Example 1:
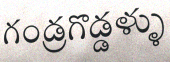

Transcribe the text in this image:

గండ్రగొడ్డళ్ళు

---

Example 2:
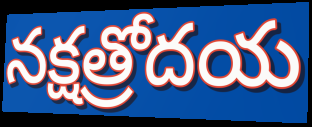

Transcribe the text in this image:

నక్షత్రోదయ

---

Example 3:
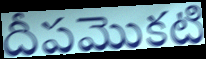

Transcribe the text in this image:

దీపమొకటి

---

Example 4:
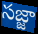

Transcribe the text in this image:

సజ్జా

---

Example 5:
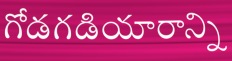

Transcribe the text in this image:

గోడగడియారాన్ని